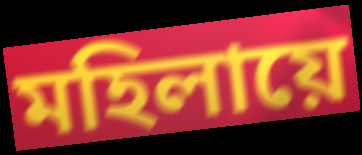
মহিলায়ে